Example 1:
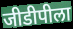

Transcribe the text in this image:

जीडीपीला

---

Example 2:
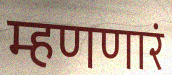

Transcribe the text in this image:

म्हणणारं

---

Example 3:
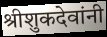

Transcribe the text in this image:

श्रीशुकदेवांनी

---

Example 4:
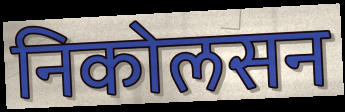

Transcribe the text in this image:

निकोलसन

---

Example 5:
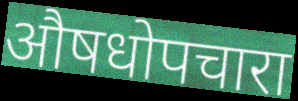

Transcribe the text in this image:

औषधोपचारा